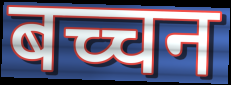
बच्चन